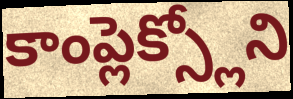
కాంప్లెక్స్లోని